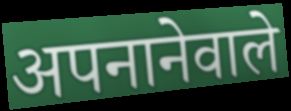
अपनानेवाले